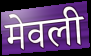
मेवली